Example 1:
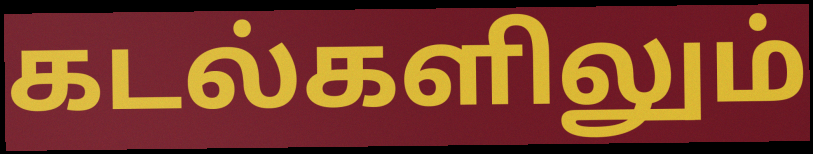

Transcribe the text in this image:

கடல்களிலும்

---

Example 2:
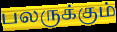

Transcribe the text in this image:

பலருக்கும்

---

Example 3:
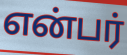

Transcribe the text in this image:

என்பர்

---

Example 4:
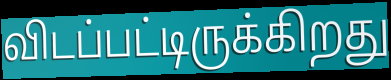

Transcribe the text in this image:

விடப்பட்டிருக்கிறது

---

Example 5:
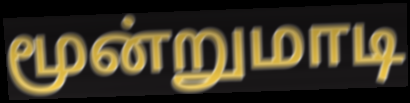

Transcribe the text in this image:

மூன்றுமாடி